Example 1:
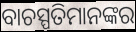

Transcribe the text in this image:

ବାଚସ୍ପତିମାନଙ୍କର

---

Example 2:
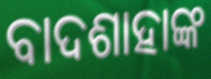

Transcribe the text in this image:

ବାଦଶାହାଙ୍କ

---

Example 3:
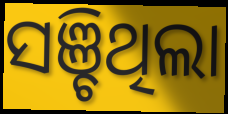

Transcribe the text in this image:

ସଞ୍ଚିଥିଲା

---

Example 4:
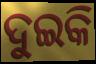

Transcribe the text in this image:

ଦୁଇକି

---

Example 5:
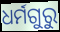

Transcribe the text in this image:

ଧର୍ମଗୁରୁ